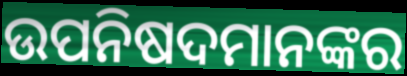
ଉପନିଷଦମାନଙ୍କର